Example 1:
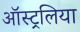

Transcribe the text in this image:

ऑस्ट्रलिया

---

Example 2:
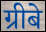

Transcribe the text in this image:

ग्रीबे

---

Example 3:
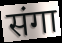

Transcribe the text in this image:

संगा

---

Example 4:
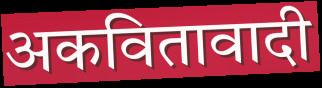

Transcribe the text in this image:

अकवितावादी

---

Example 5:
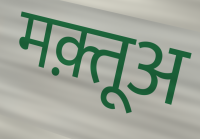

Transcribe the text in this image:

मक़्तूअ